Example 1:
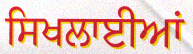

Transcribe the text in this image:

ਸਿਖਲਾਈਆਂ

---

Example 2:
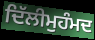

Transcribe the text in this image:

ਦਿੱਲੀਮੁਹੰਮਦ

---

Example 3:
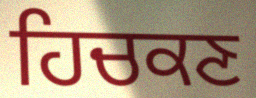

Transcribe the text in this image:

ਹਿਚਕਣ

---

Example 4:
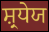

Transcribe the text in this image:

ਸ਼੍ਰਧੇਯ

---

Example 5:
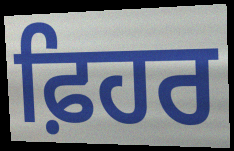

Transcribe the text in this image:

ਫ਼ਿਹਰ